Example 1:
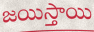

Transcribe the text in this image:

జయిస్తాయి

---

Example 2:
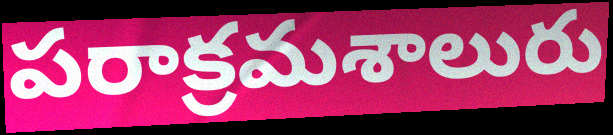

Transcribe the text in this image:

పరాక్రమశాలురు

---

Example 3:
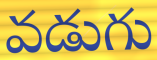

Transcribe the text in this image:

వడుగు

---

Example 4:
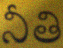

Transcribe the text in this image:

నీతి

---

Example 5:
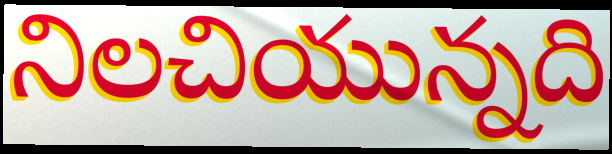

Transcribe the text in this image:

నిలచియున్నది